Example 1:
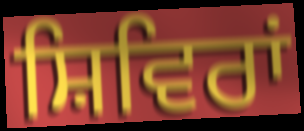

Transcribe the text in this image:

ਸ਼ਿਵਿਰਾਂ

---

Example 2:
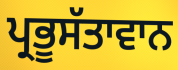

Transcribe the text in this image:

ਪ੍ਰਭੂਸੱਤਾਵਾਨ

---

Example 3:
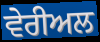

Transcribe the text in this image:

ਵੇਰੀਅਲ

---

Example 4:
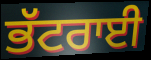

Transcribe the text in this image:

ਭੱਟਰਾਈ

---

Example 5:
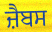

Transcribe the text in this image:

ਜ਼ੈਬਸ